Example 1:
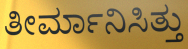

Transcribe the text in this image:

ತೀರ್ಮಾನಿಸಿತ್ತು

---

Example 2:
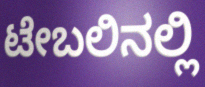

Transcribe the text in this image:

ಟೇಬಲಿನಲ್ಲಿ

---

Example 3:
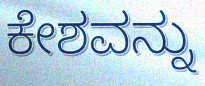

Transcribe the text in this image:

ಕೇಶವನ್ನು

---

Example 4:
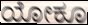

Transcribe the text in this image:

ಯೋಕೂ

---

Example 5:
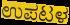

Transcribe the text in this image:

ಉಪಟಳ